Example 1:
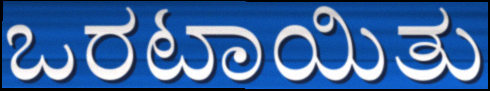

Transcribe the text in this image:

ಒರಟಾಯಿತು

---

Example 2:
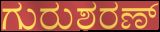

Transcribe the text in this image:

ಗುರುಶರಣ್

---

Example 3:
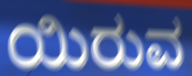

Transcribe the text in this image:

ಯಿರುವ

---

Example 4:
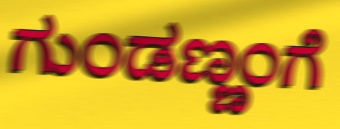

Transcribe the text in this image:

ಗುಂಡಣ್ಣಂಗೆ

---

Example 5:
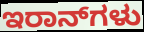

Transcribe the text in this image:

ಇರಾನ್‌ಗಳು